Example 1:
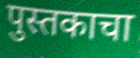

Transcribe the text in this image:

पुस्तकाचा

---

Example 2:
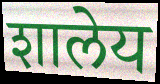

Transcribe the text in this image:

शालेय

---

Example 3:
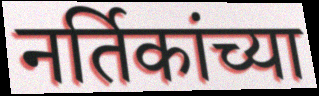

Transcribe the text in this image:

नर्तिकांच्या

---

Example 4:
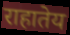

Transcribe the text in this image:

राहातेय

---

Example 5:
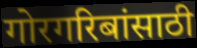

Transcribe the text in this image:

गोरगरिबांसाठी